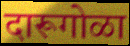
दारूगोळा